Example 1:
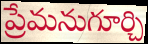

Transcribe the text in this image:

ప్రేమనుగూర్చి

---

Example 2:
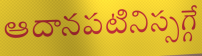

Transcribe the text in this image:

ఆదానపటినిస్సగ్గే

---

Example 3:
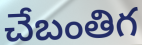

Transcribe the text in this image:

చేబంతిగ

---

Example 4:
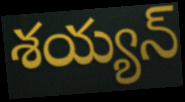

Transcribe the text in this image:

శయ్యన్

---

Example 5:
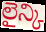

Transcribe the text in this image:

లైన్కి